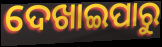
ଦେଖାଇପାରୁ